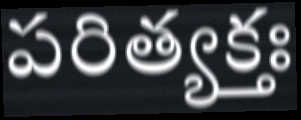
పరిత్యక్తః